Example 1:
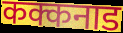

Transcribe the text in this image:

कक्कनाड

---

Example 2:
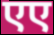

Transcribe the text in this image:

एए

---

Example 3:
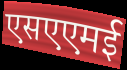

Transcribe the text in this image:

एसएएमई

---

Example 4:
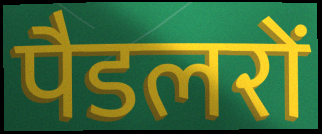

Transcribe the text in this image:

पैडलरों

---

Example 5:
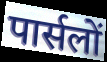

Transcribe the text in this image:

पार्सलों